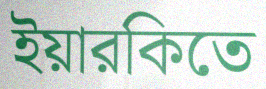
ইয়ারকিতে